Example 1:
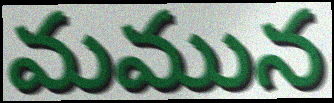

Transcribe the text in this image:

మమున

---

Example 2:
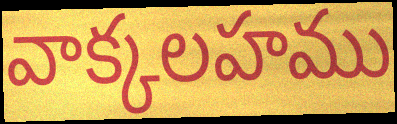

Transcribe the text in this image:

వాక్కలహము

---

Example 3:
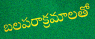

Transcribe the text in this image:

బలపరాక్రమాలతో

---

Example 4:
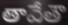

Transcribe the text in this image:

తావేతౌ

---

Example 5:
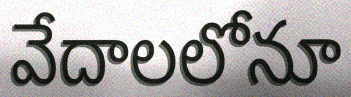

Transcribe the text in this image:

వేదాలలోనూ